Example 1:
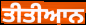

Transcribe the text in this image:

ਤੀਤੀਆਨ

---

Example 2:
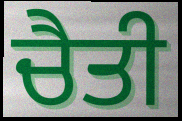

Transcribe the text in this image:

ਚੈਤੀ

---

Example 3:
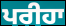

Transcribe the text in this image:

ਪਰੀਹਾ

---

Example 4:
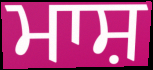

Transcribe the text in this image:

ਮਾਸ਼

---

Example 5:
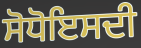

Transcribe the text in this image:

ਸੋਧੋਇਸਦੀ